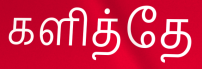
களித்தே